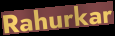
Rahurkar